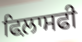
ਫਿਲ਼ਾਸਫੀ